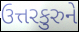
ઉત્તરકુરુને